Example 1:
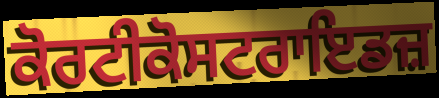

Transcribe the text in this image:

ਕੋਰਟੀਕੋਸਟਰਾਇਡਜ਼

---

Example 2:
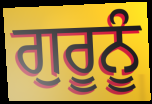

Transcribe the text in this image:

ਗੁਰੂਨੂੰ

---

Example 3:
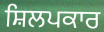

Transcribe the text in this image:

ਸ਼ਿਲਪਕਾਰ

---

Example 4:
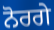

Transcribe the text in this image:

ਨੋਰਗੇ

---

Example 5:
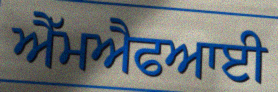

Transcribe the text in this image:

ਐੱਮਐਫਆਈ